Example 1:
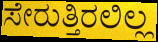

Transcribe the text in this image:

ಸೇರುತ್ತಿರಲಿಲ್ಲ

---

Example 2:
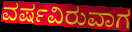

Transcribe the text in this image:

ವರ್ಷವಿರುವಾಗ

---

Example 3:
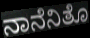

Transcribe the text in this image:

ನಾನೆನಿತೊ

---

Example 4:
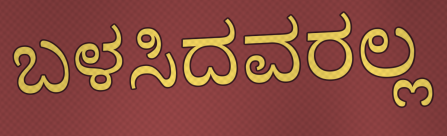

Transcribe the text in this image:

ಬಳಸಿದವರಲ್ಲ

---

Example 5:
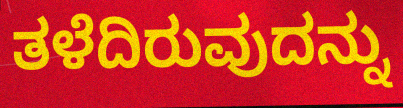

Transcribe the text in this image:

ತಳೆದಿರುವುದನ್ನು